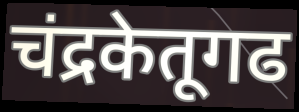
चंद्रकेतूगढ